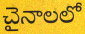
చైనాలలో